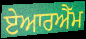
ਏਆਰਐੱਮ